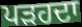
ਪੜਹਦਾ